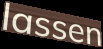
lassen